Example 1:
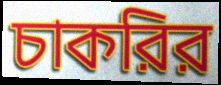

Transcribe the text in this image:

চাকরির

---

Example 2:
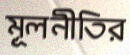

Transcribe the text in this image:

মূলনীতির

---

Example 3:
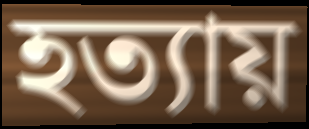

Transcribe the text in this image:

হত্যায়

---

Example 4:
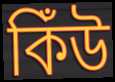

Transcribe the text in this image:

কিঁউ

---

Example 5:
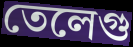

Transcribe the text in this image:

তেলেগু